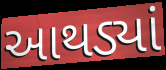
આથડ્યાં